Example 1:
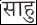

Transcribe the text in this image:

साहु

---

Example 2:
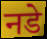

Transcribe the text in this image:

नडे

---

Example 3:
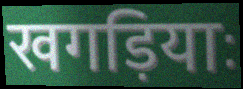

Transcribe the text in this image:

खगड़ियाः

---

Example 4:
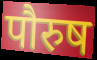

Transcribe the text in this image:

पौरुष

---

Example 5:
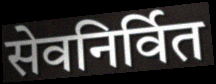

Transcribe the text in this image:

सेवनिर्वित